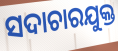
ସଦାଚାରଯୁକ୍ତ